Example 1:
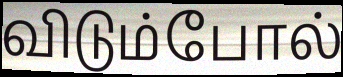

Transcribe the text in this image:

விடும்போல்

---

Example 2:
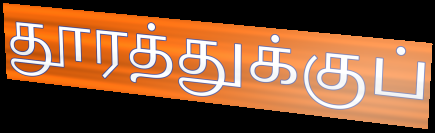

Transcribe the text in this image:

தூரத்துக்குப்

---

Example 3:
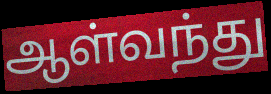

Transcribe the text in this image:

ஆள்வந்து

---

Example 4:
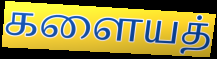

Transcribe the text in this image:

களையத்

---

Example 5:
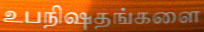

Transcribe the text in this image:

உபநிஷதங்களை